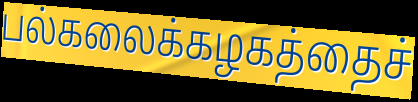
பல்கலைக்கழகத்தைச்